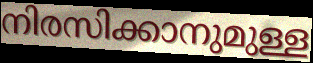
നിരസിക്കാനുമുള്ള